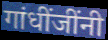
गांधींजींनी